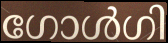
ഗോൾഗി